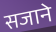
सजाने